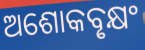
ଅଶୋକବୃକ୍ଷଂ